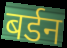
बर्डन